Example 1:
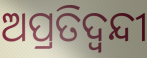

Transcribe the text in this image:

ଅପ୍ରତିଦ୍ବନ୍ଦୀ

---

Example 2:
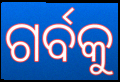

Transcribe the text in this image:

ଗର୍ବକୁ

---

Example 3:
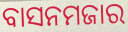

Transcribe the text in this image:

ବାସନମଜାର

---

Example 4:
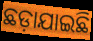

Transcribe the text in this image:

ଛଡ଼ାଯାଇଛି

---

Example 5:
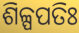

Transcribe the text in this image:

ଶିଳ୍ପପତିଃ